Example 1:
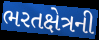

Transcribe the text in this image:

ભરતક્ષેત્રની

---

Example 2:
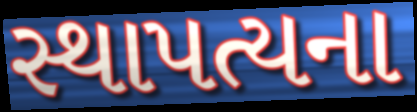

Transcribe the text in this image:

સ્થાપત્યના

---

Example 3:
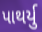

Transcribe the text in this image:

પાથર્યુ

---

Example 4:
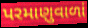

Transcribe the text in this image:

પરમાણુવાળાં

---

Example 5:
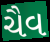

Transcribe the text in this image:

ચૈવ